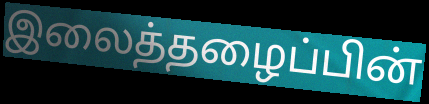
இலைத்தழைப்பின்